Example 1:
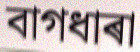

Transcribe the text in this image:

বাগধাৰা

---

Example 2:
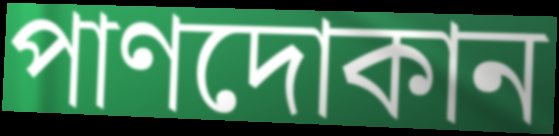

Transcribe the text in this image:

পাণদোকান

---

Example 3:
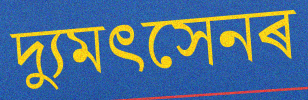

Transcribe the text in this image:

দ্যুমৎসেনৰ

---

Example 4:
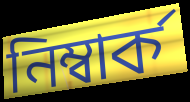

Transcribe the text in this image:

নিম্বাৰ্ক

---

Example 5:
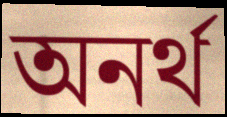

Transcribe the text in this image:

অনৰ্থ